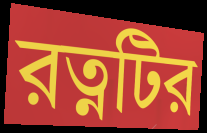
রত্নটির